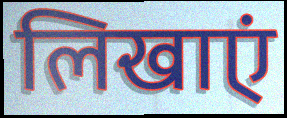
लिखाएं